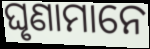
ଘୃଣାମାନେ